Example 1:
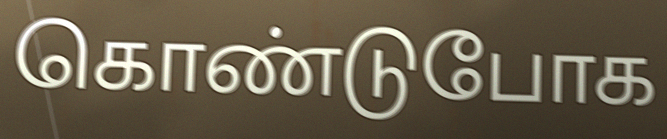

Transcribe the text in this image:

கொண்டுபோக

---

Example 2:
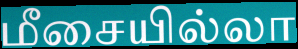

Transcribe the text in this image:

மீசையில்லா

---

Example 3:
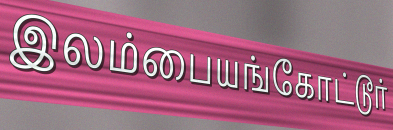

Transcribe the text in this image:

இலம்பையங்கோட்டூர்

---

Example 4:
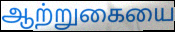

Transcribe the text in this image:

ஆற்றுகையை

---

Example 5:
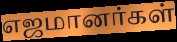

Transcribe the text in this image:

எஜமானர்கள்